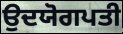
ਉਦਯੋਗਪਤੀ